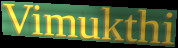
Vimukthi